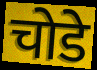
चोडे